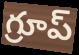
గ్రూప్